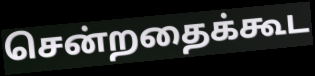
சென்றதைக்கூட